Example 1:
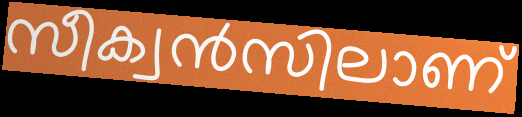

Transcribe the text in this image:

സീക്വൻസിലാണ്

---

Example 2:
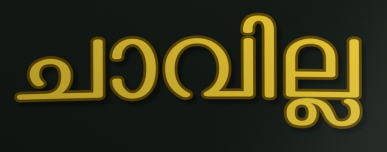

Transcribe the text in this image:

ചാവില്ല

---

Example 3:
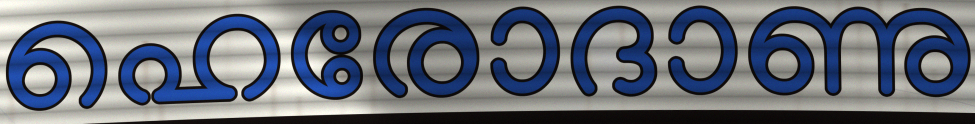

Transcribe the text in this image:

ഹെരോദാണു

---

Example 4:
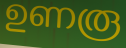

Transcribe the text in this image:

ഉണരൂ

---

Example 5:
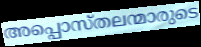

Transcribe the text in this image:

അപ്പൊസ്തലന്മാരുടെ